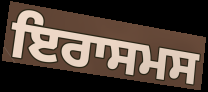
ਇਰਾਸਮਸ